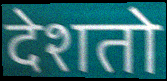
देशतो